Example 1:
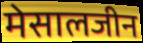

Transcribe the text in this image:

मेसालजीन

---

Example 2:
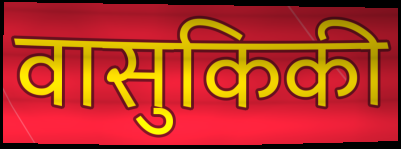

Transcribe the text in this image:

वासुकिकी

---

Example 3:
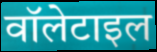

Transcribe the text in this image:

वॉलेटाइल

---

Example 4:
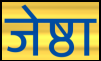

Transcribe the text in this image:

जेष्ठा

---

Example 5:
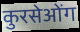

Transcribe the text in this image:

कुरसेओंग